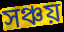
সঞ্চয়